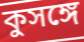
কুসঙ্গে